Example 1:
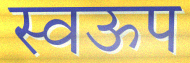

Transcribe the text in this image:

स्वऊप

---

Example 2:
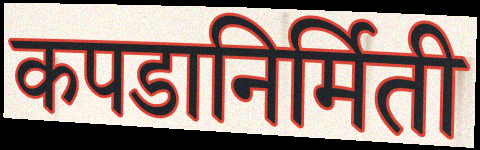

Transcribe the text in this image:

कपडानिर्मिती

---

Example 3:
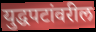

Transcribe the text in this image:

युद्धपटांवरील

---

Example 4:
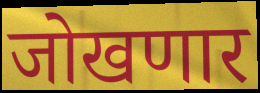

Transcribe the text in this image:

जोखणार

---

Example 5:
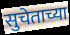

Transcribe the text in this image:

सुचेताच्या